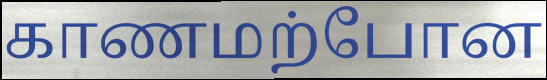
காணமற்போன